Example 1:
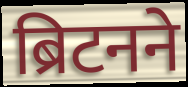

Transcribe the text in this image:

ब्रिटनने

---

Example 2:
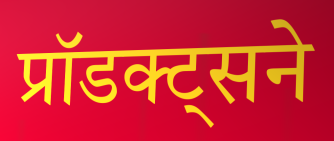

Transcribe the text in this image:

प्रॉडक्ट्सने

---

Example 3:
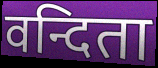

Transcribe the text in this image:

वन्दिता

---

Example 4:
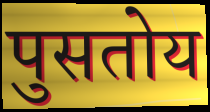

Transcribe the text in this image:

पुसतोय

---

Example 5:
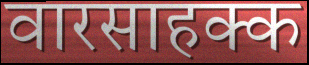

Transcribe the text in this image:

वारसाहक्क